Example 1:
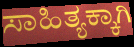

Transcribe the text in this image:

ಸಾಹಿತ್ಯಕ್ಕಾಗಿ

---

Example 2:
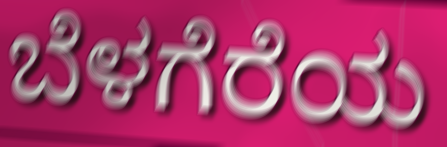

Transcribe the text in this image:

ಬೆಳಗೆರೆಯ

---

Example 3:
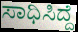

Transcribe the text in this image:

ಸಾಧಿಸಿದ್ದೆ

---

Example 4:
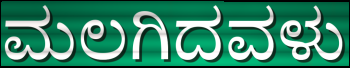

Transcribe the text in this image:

ಮಲಗಿದವಳು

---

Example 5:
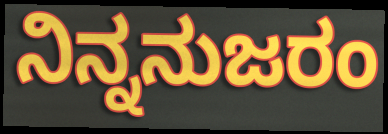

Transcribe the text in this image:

ನಿನ್ನನುಜರಂ